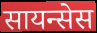
सायन्सेस